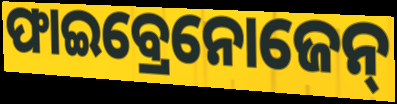
ଫାଇବ୍ରେନୋଜେନ୍